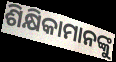
ଶିକ୍ଷିକାମାନଙ୍କୁ